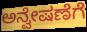
ಅನ್ವೇಷಣೆಗೆ